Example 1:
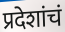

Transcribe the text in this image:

प्रदेशांचं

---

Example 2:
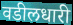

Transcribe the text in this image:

वडीलधारी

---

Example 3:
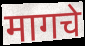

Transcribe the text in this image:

मागचे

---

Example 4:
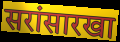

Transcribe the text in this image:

सरांसारखा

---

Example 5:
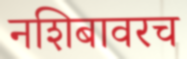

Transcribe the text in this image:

नशिबावरच